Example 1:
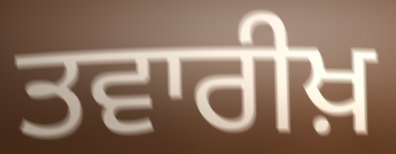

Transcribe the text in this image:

ਤਵਾਰੀਖ਼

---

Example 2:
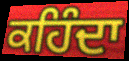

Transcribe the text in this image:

ਕਹਿੰਦਾ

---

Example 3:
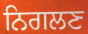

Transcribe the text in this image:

ਨਿਗਲਣ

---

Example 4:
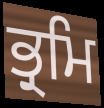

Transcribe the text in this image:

ਭ੍ਰਮਿ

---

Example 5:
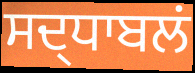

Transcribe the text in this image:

ਸਦ੍ਧਾਬਲਂ